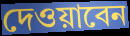
দেওয়াবেন